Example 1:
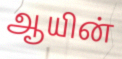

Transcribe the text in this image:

ஆயின்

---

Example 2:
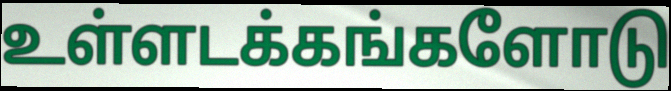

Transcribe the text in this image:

உள்ளடக்கங்களோடு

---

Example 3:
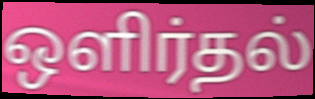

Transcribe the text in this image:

ஒளிர்தல்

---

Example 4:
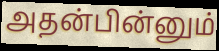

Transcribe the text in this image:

அதன்பின்னும்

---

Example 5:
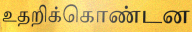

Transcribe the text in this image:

உதறிக்கொண்டன